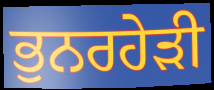
ਭੁਨਰਹੇੜੀ